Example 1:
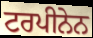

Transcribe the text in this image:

ਟਰਪੀਨੇਨ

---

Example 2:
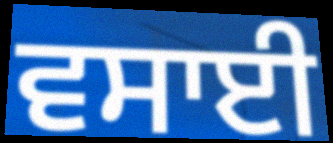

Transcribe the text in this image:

ਵਸਾਈ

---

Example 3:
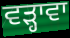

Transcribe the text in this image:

ਵੜ੍ਹਾਵਾ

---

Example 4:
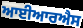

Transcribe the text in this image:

ਆਈਆਰਐਸ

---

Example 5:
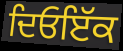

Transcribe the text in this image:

ਦਿਓਇੱਕ